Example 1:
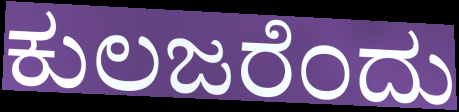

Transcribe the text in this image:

ಕುಲಜರೆಂದು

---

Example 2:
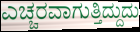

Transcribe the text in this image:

ಎಚ್ಚರವಾಗುತ್ತಿದ್ದುದು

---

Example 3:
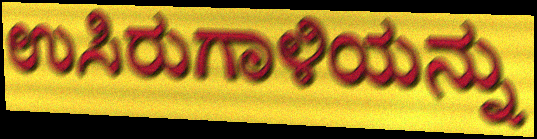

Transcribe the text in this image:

ಉಸಿರುಗಾಳಿಯನ್ನು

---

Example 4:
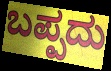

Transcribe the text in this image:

ಬಪ್ಪದು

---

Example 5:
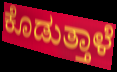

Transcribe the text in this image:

ಕೊಡುತ್ತಾಳೆ